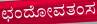
ಛಂದೋವತಂಸ